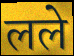
लले